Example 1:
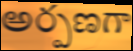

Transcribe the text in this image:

అర్పణగా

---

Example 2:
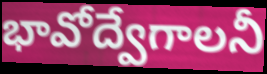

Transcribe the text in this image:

భావోద్వేగాలనీ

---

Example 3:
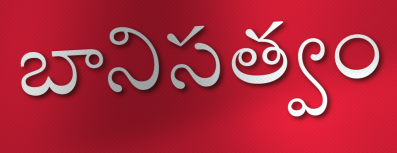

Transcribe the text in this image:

బానిసత్వం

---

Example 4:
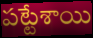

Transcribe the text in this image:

పట్టేశాయి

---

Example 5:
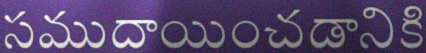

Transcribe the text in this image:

సముదాయించడానికి